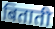
बिताती